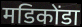
मडिकोंडा